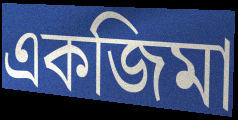
একজিমা